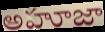
అహూజా